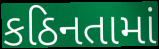
કઠિનતામાં